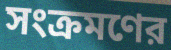
সংক্রমণের